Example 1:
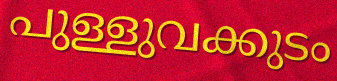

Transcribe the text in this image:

പുള്ളുവക്കുടം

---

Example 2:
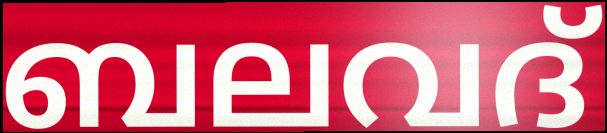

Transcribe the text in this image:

ബലവദ്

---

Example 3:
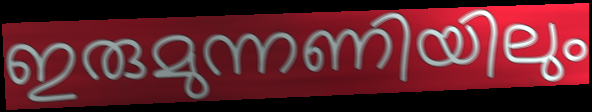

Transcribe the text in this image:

ഇരുമുന്നണിയിലും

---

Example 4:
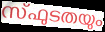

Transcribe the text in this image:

സ്ഫുടതയും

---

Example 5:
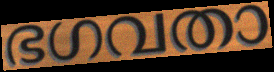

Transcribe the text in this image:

ഭഗവതാ